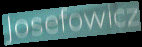
Josefowicz